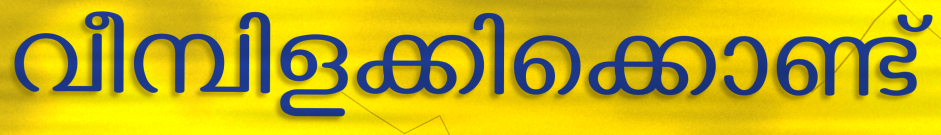
വീമ്പിളക്കിക്കൊണ്ട്